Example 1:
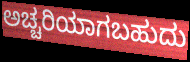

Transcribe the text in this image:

ಅಚ್ಚರಿಯಾಗಬಹುದು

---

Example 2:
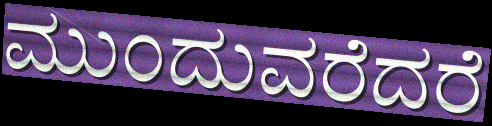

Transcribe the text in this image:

ಮುಂದುವರೆದರೆ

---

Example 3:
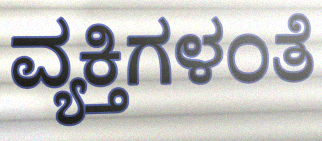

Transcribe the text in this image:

ವ್ಯಕ್ತಿಗಳಂತೆ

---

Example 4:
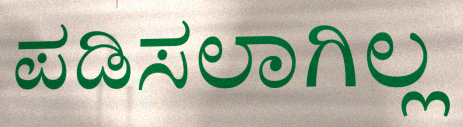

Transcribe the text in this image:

ಪಡಿಸಲಾಗಿಲ್ಲ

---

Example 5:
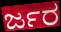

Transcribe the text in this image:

ರ್ಜರ